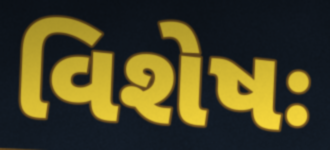
વિશેષઃ